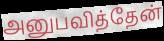
அனுபவித்தேன்